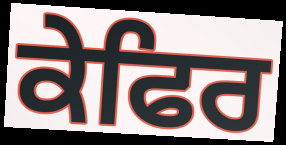
ਕੇਫਿਰ